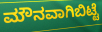
ಮೌನವಾಗಿಬಿಟ್ಟೆ